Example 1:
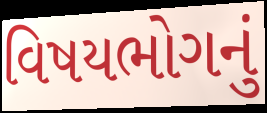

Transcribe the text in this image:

વિષયભોગનું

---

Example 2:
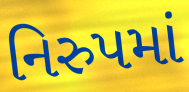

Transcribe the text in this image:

નિરુપમાં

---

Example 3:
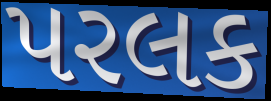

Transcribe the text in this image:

પરલક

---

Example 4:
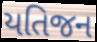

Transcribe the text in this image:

યતિજન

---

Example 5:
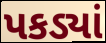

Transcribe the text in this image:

પકડ્યાં